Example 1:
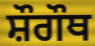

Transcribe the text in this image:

ਸ਼ੌਗੌਥ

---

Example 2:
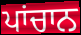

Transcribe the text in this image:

ਪਾਂਚਾਨ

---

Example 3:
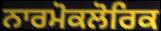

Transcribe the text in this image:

ਨਾਰਮੋਕਲੋਰਿਕ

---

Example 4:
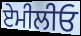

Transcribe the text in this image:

ਏਮੀਲੀਓ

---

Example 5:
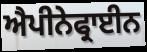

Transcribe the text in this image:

ਐਪੀਨੇਫ੍ਰਾਈਨ